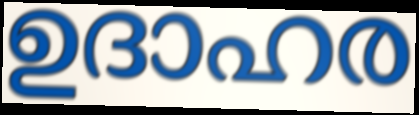
ഉദാഹര